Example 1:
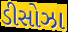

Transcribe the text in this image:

ડીસોઝા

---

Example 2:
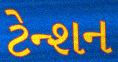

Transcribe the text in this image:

ટેન્શન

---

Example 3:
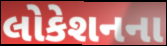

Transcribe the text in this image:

લોકેશનના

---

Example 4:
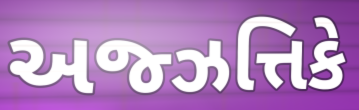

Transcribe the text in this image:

અજ્ઝત્તિકે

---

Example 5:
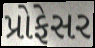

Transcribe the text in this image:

પ્રોફેસર